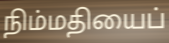
நிம்மதியைப்